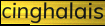
cinghalais